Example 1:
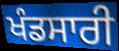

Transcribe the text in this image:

ਖੰਡਸਾਰੀ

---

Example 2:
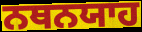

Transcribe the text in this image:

ਨਥਨਯਾਹ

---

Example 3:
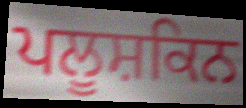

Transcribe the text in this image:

ਪਲੂਸ਼ਕਿਨ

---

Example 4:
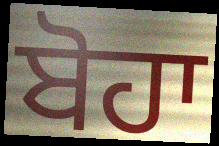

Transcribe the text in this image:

ਬੋਹਾ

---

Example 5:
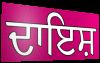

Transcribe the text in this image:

ਦਾਇਸ਼